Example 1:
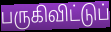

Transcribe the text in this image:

பருகிவிட்டுப்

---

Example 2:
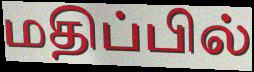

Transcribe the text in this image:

மதிப்பில்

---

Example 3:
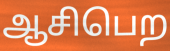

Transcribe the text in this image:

ஆசிபெற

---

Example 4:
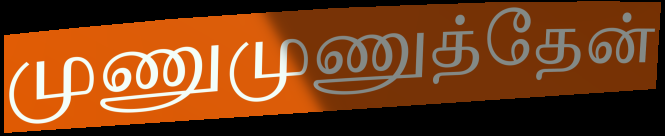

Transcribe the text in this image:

முணுமுணுத்தேன்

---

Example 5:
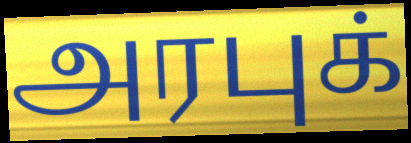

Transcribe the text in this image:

அரபுக்